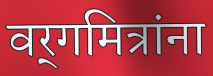
वर्गमित्रांना